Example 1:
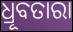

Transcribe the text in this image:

ଧ୍ରୂବତାରା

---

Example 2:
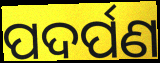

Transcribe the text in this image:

ପଦର୍ପଣ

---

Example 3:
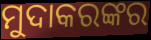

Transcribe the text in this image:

ମୁଦାକରଙ୍କର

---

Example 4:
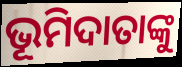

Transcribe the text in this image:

ଭୂମିଦାତାଙ୍କୁ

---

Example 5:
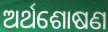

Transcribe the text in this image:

ଅର୍ଥଶୋଷଣ